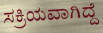
ಸಕ್ರಿಯವಾಗಿದ್ದೆ